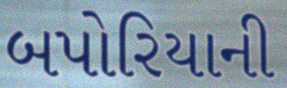
બપોરિયાની